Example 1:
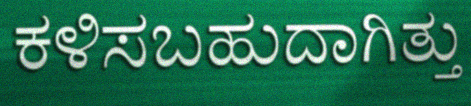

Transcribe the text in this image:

ಕಳಿಸಬಹುದಾಗಿತ್ತು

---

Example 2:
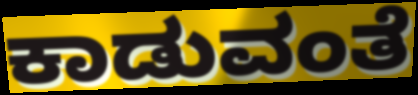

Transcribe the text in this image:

ಕಾಡುವಂತೆ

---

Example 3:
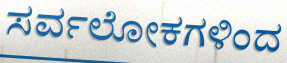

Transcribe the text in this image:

ಸರ್ವಲೋಕಗಳಿಂದ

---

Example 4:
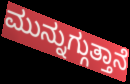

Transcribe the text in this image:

ಮುನ್ನುಗ್ಗುತ್ತಾನೆ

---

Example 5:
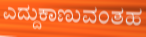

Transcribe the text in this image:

ಎದ್ದುಕಾಣುವಂತಹ